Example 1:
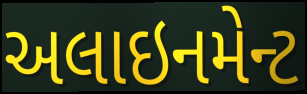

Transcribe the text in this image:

અલાઇનમેન્ટ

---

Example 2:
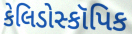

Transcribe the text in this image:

કેલિડોસ્કૉપિક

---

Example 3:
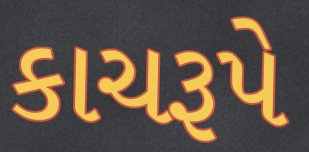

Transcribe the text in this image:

કાચરૂપે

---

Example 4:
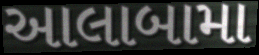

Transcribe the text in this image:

આલાબામા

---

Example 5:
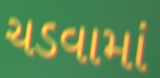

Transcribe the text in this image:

ચડવામાં